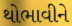
થોભાવીને